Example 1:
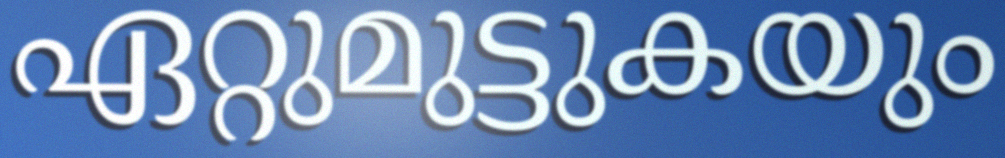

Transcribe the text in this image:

ഏറ്റുമുട്ടുകയും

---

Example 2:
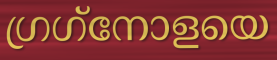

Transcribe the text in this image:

ഗ്രഗ്‌നോളയെ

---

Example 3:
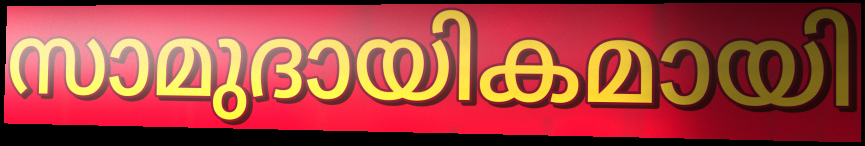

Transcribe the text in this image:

സാമുദായികമായി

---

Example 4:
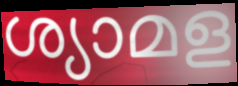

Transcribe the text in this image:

ശ്യാമള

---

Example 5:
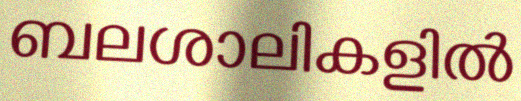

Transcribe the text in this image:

ബലശാലികളിൽ